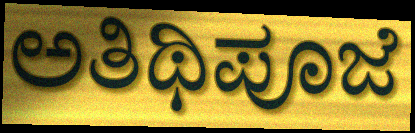
ಅತಿಥಿಪೂಜೆ